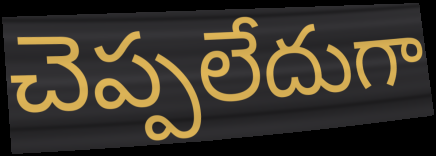
చెప్పలేదుగా